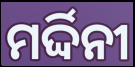
ମର୍ଦ୍ଦିନୀ